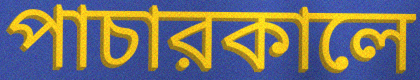
পাচারকালে